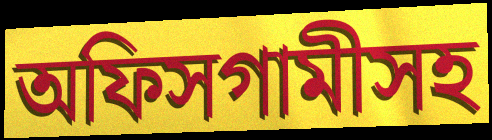
অফিসগামীসহ